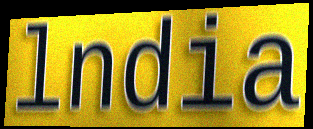
lndia